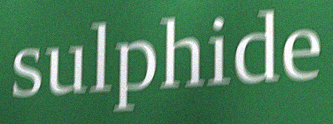
sulphide